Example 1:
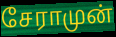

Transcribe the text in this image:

சேராமுன்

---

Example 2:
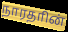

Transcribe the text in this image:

நாரதரின்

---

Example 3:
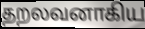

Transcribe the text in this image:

தறலவனாகிய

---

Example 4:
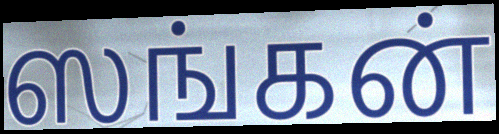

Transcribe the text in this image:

ஸங்கன்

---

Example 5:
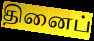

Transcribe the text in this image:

தினைப்